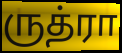
ருத்ரா